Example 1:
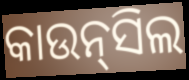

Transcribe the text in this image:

କାଉନ୍‍ସିଲ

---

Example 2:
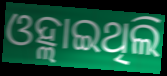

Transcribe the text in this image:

ଓହ୍ଲାଇଥିଲି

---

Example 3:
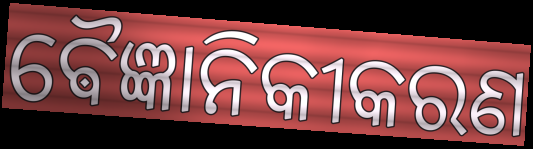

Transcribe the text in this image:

ଵୈଜ୍ଞାନିକୀକରଣ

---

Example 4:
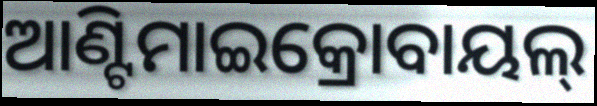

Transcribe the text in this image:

ଆଣ୍ଟିମାଇକ୍ରୋବାୟଲ୍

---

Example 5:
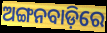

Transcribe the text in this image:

ଅଙ୍ଗନବାଡ଼ିରେ